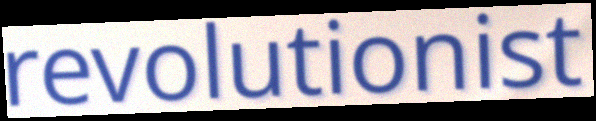
revolutionist